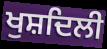
ਖੁਸ਼ਦਿਲੀ